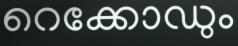
റെക്കോഡും